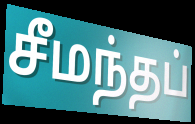
சீமந்தப்